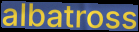
albatross